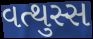
વત્થુસ્સ